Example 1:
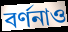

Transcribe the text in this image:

বর্ণনাও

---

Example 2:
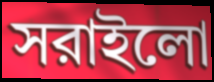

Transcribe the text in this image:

সরাইলো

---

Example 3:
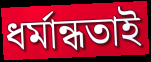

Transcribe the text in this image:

ধর্মান্ধতাই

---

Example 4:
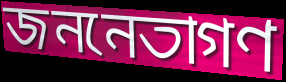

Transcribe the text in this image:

জননেতাগণ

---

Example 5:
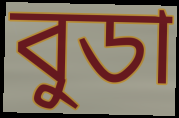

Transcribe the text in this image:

বুডা